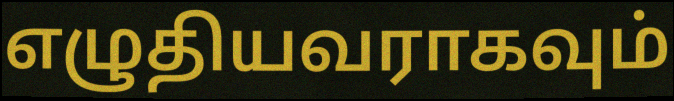
எழுதியவராகவும்